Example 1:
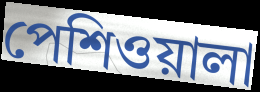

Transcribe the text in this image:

পেশিওয়ালা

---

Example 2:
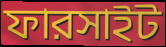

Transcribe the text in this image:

ফারসাইট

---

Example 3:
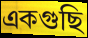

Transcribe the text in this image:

একগুছি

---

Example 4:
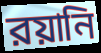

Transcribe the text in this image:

রয়ানি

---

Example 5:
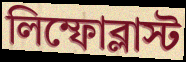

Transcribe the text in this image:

লিম্ফোব্লাস্ট